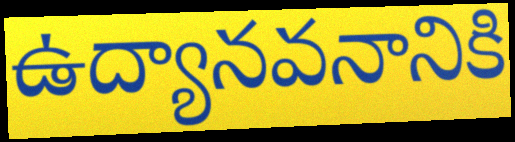
ఉద్యానవనానికి